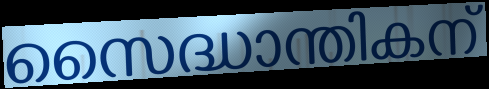
സൈദ്ധാന്തികന്